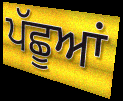
ਪੱਛੂਆਂ